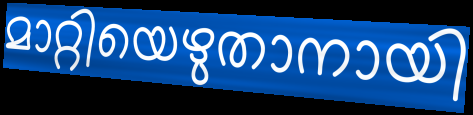
മാറ്റിയെഴുതാനായി